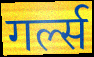
गर्ल्स